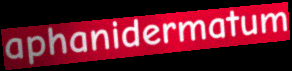
aphanidermatum